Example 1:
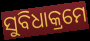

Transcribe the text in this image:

ସୁବିଧାକ୍ରମେ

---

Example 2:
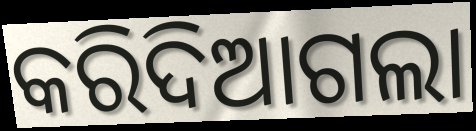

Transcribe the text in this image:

କରିଦିଆଗଲା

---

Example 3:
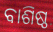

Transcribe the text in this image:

ବାଶିଷ୍ଠ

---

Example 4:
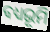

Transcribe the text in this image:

ବଧ୍ୟଭୂମି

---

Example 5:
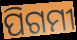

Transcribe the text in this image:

ପିଗମୀ